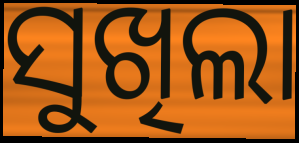
ସୁଖିଲା